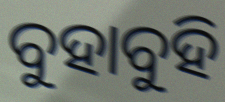
ବୁହାବୁହି